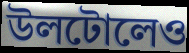
উলটোলেও